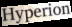
Hyperion